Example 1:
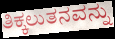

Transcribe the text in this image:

ತಿಕ್ಕಲುತನವನ್ನು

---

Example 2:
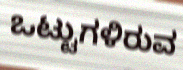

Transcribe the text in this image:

ಒಟ್ಟುಗಳಿರುವ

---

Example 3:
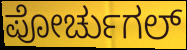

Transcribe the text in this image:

ಪೋರ್ಚುಗಲ್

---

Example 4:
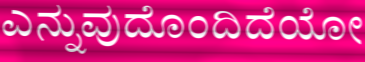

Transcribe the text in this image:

ಎನ್ನುವುದೊಂದಿದೆಯೋ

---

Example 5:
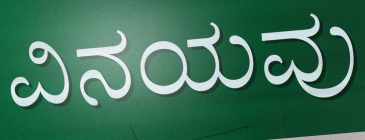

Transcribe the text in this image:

ವಿನಯವು